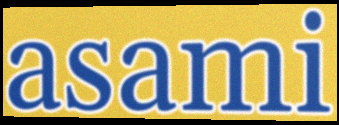
asami